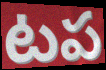
టప